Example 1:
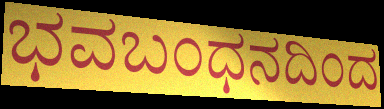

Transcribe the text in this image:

ಭವಬಂಧನದಿಂದ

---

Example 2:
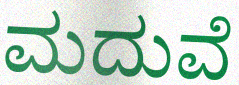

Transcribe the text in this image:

ಮದುವೆ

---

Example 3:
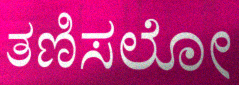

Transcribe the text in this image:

ತಣಿಸಲೋ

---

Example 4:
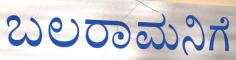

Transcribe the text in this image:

ಬಲರಾಮನಿಗೆ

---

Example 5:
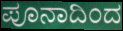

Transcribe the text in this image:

ಪೂನಾದಿಂದ